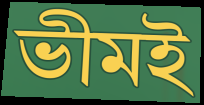
ভীমই